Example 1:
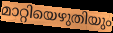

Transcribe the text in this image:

മാറ്റിയെഴുതിയും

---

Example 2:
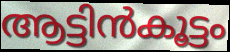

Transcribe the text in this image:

ആട്ടിൻകൂട്ടം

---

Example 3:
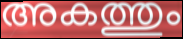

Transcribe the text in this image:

അകത്തും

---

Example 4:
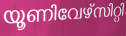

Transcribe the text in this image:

യൂണിവേഴ്സിറ്റി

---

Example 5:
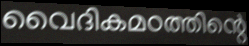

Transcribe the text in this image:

വൈദികമഠത്തിന്റെ